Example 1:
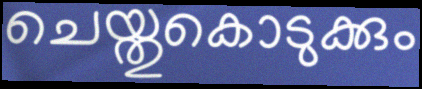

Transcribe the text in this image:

ചെയ്തുകൊടുക്കും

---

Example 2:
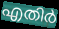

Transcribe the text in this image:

എതിർ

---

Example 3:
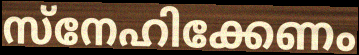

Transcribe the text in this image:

സ്നേഹിക്കേണം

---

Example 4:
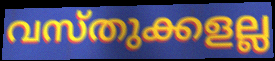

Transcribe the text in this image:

വസ്തുക്കളല്ല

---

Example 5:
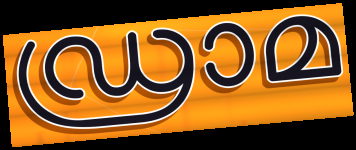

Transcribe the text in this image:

ഡ്രാമ